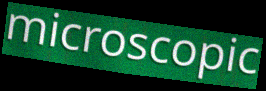
microscopic